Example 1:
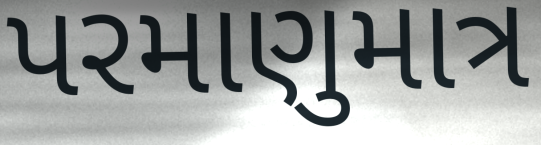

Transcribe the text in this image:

પરમાણુમાત્ર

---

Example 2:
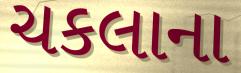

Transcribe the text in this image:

ચકલાના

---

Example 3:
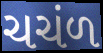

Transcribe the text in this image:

ચચંળ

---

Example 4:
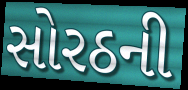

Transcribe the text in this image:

સોરઠની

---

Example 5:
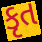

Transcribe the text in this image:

કૃત